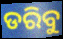
ଡରିବୁ